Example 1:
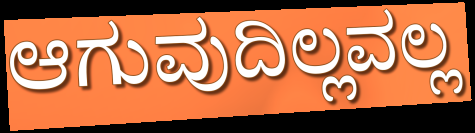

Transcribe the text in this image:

ಆಗುವುದಿಲ್ಲವಲ್ಲ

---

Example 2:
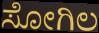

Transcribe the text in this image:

ಸೋಗಿಲ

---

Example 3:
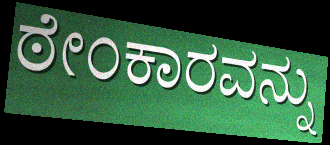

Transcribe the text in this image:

ಠೇಂಕಾರವನ್ನು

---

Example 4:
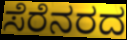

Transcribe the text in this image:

ಸೆರೆನರದ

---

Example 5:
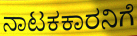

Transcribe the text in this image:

ನಾಟಕಕಾರನಿಗೆ